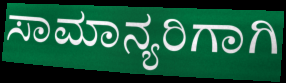
ಸಾಮಾನ್ಯರಿಗಾಗಿ